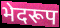
भेदरूप